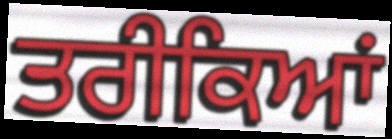
ਤਰੀਕਿਆਂ